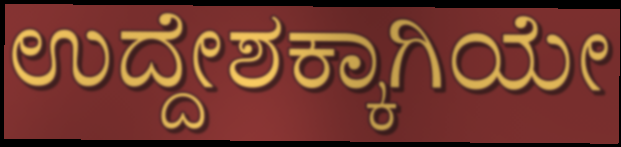
ಉದ್ದೇಶಕ್ಕಾಗಿಯೇ